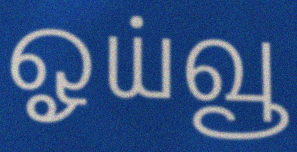
ஓய்வூ